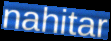
nahitar